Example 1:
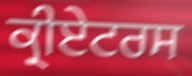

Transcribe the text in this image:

ਕ੍ਰੀਏਟਰਸ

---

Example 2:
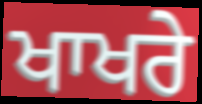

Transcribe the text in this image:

ਖਾਖਰੇ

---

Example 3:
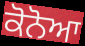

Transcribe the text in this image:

ਕੋਨੋਆ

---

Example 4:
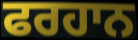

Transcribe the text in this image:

ਫਰਹਾਨ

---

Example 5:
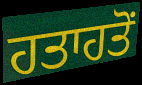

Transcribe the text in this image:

ਹਤਾਹਤੋਂ